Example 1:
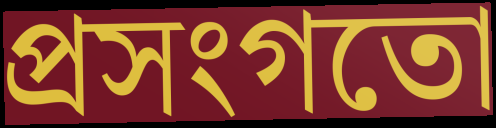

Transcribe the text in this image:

প্ৰসংগতো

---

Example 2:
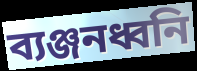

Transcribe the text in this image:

ব্যঞ্জনধ্বনি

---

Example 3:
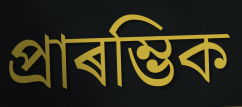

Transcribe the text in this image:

প্ৰাৰম্ভিক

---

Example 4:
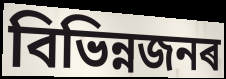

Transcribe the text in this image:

বিভিন্নজনৰ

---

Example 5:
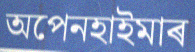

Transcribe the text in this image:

অপেনহাইমাৰ